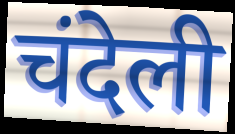
चंदेली